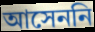
আসেননি